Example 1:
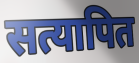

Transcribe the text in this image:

सत्यापित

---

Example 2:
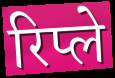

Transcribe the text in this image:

रिप्ले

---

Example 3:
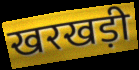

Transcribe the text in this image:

खरखड़ी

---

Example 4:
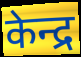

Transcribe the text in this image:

केन्द्र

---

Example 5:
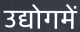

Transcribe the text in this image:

उद्योगमें